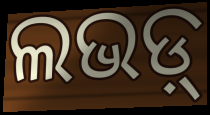
ଲଭଡ଼୍